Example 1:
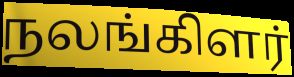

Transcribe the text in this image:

நலங்கிளர்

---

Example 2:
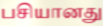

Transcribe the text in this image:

பசியானது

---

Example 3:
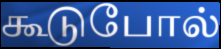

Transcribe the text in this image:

கூடுபோல்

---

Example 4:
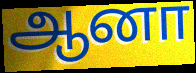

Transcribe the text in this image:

ஆனா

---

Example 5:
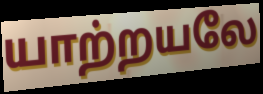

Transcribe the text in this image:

யாற்றயலே